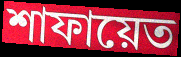
শাফায়েত